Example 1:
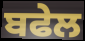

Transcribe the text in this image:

ਬਫੇਲ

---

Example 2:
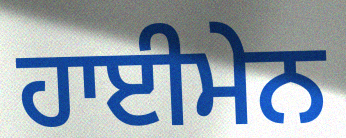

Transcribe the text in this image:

ਹਾਈਮੇਨ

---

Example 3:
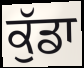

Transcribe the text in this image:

ਕੁੱਡਾ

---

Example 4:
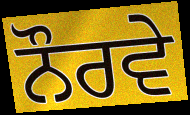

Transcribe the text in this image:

ਨੌਰਵੇ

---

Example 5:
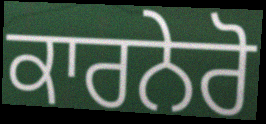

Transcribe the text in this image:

ਕਾਰਨੇਰੋ